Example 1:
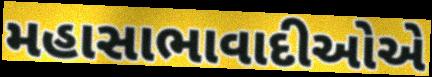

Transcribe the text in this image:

મહાસાભાવાદીઓએ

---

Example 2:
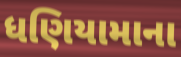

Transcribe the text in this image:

ધણિયામાના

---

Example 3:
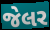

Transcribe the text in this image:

જેલર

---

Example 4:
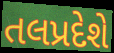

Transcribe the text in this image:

તલપ્રદેશે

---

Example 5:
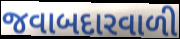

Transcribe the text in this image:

જવાબદારવાળી